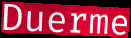
Duerme